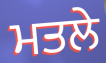
ਮਤਲੇ